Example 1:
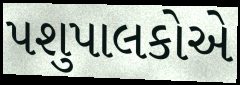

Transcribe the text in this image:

પશુપાલકોએ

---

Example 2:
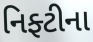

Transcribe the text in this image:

નિફ્ટીના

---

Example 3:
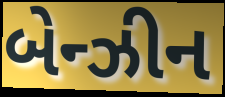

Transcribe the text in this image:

બેન્ઝીન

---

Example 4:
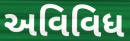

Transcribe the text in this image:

અવિવિધ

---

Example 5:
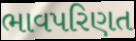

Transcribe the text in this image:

ભાવપરિણત